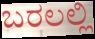
ಬರಲಲ್ಲಿ